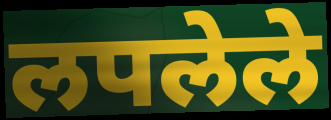
लपलेले